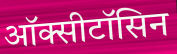
ऑक्सीटॉसिन